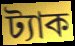
ট্যাক